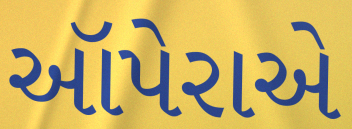
ઑપેરાએ